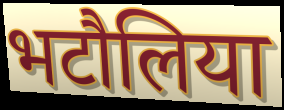
भटौलिया